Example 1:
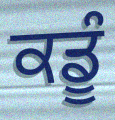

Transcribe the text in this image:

ਕਡੂੰ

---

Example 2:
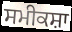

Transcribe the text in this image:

ਸਮੀਕਸ਼ਾ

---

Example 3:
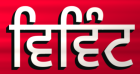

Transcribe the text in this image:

ਵਿਵਿੰਟ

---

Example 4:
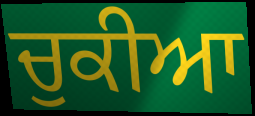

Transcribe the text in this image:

ਚੁਕੀਆ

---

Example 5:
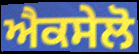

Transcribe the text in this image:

ਐਕਸੇਲੋ